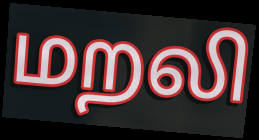
மறலி